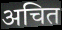
अचित